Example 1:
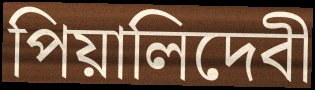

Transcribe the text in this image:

পিয়ালিদেবী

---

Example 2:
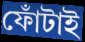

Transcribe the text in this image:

ফোঁটাই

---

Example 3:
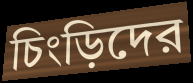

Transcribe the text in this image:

চিংড়িদের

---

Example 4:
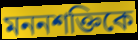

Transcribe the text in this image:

মননশক্তিকে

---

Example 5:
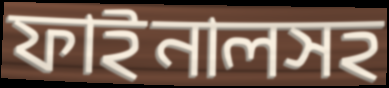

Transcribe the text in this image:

ফাইনালসহ